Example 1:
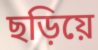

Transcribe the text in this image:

ছড়িয়ে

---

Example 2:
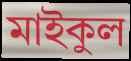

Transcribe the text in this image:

মাইকুল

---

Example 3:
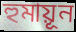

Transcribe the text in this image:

হুমায়ূন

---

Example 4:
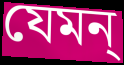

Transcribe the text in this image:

যেমন্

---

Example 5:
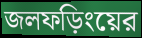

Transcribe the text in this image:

জলফড়িংয়ের